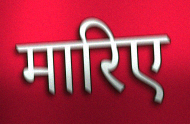
मारिए